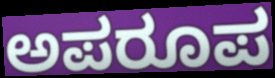
ಅಪರೂಪ